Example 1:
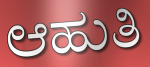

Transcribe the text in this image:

ಆಹುತಿ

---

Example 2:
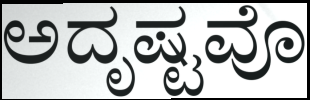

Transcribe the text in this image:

ಅದೃಷ್ಟವೊ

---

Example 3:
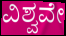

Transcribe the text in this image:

ವಿಶ್ವವೇ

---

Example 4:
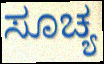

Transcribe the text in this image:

ಸೂಚ್ಯ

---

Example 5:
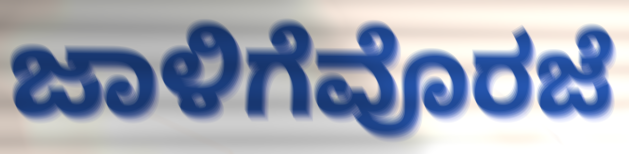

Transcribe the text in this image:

ಜಾಳಿಗೆವೊರಜೆ